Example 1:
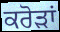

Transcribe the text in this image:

ਕਰੋਡ਼ਾਂ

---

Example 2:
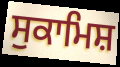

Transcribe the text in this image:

ਸੁਕਾਮਿਸ਼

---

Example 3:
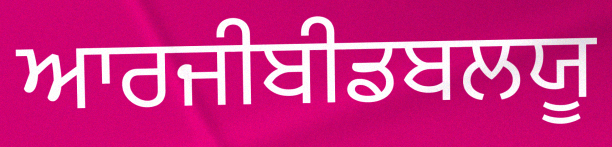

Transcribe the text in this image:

ਆਰਜੀਬੀਡਬਲਯੂ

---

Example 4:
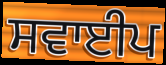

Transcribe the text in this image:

ਸਵਾਈਪ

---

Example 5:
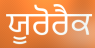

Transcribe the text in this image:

ਯੂਰੋਰੈਕ